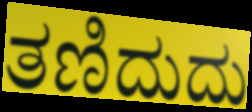
ತಣಿದುದು